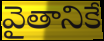
వైతానికే